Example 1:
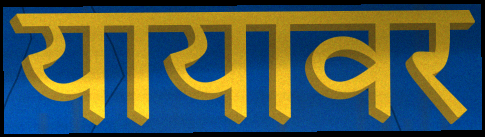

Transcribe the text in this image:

यायावर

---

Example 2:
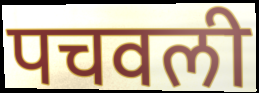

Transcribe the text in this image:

पचवली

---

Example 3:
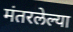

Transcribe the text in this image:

मंतरलेल्या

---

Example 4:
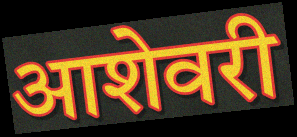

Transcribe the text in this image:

आशेवरी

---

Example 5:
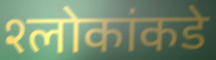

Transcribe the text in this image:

श्लोकांकडे